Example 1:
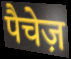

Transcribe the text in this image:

पैचेज़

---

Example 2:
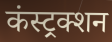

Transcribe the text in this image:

कंस्ट्रक्शन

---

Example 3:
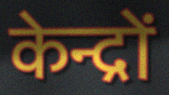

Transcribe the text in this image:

केन्द्रों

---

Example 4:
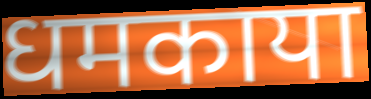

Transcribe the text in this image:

धमकाया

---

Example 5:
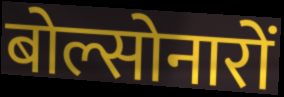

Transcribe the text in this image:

बोल्सोनारों